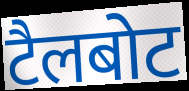
टैलबोट